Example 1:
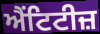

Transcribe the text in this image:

ਐਂਟਿਟੀਜ਼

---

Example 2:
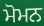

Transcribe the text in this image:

ਮੋਮਨ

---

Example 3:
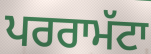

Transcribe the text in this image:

ਪਰਰਾਮੱਟਾ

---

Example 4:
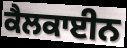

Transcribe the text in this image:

ਕੈਲਕਾਈਨ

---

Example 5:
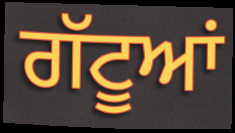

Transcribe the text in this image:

ਗੱਟੂਆਂ